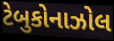
ટેબુકોનાઝોલ